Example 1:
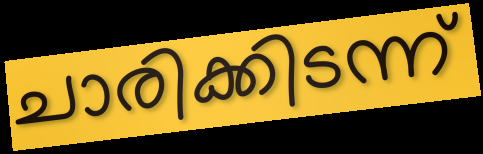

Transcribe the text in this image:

ചാരിക്കിടന്ന്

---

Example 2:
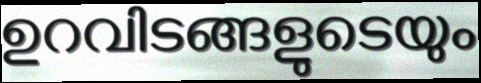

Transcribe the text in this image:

ഉറവിടങ്ങളുടെയും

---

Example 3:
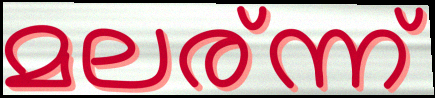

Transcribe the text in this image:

മലര്ന്ന്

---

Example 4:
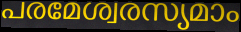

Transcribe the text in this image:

പരമേശ്വരസ്യമാം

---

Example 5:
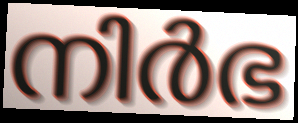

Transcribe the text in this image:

നിർഭ